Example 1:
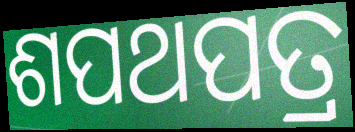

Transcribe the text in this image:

ଶପଥପତ୍ର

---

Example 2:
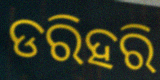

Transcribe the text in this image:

ଡରିହରି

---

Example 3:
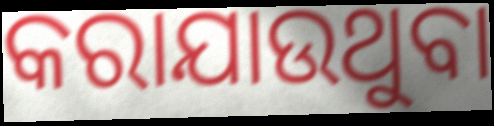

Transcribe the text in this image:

କରାଯାଉଥୁବା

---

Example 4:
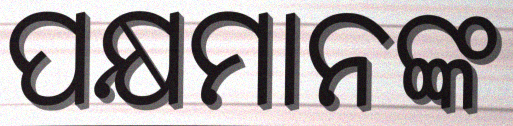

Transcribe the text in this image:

ପକ୍ଷମାନଙ୍କ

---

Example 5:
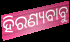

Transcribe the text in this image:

ହିରଣ୍ୟବାବୁ